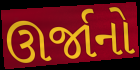
ઊર્જાનો